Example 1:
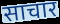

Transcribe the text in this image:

साचार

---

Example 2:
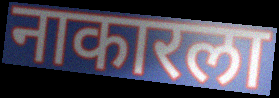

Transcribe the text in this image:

नाकारला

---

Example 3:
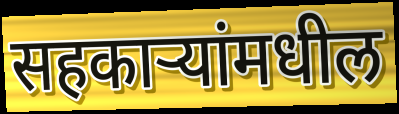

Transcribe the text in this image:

सहकाऱ्यांमधील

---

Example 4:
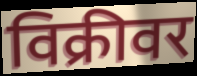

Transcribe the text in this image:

विक्रीवर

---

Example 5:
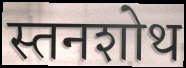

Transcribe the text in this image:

स्तनशोथ